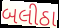
બલીઠા